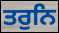
ਤਰੁਨਿ